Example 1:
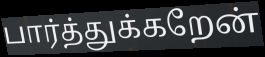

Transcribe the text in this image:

பார்த்துக்கறேன்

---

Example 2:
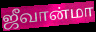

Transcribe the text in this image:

ஜீவான்மா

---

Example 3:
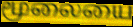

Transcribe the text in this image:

மூலையை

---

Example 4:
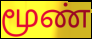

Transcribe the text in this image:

மூண்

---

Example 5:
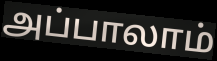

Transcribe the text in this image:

அப்பாலாம்